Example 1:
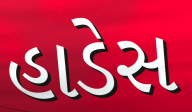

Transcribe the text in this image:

હાડેસ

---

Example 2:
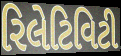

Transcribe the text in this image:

રિલેટિવિટી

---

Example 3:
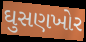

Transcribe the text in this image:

ઘુસણખોર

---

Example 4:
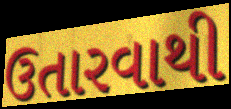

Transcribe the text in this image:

ઉતારવાથી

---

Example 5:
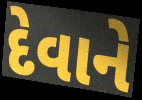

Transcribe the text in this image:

દેવાને